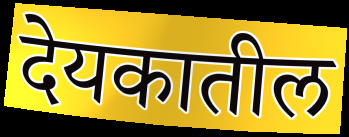
देयकातील